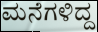
ಮನೆಗಳಿದ್ದ